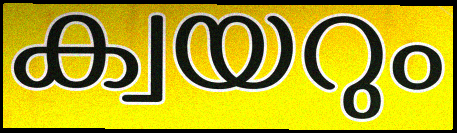
ക്വയറും